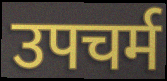
उपचर्म